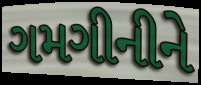
ગમગીનીને